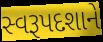
સ્વરૂપદશાને